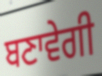
ਬਣਾਵੇਗੀ